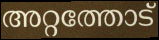
അറ്റത്തോട്